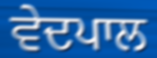
ਵੇਦਪਾਲ